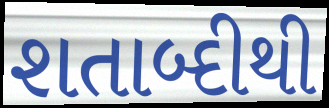
શતાબ્દીથી